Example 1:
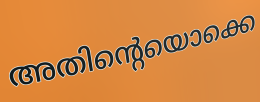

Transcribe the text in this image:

അതിന്റെയൊക്കെ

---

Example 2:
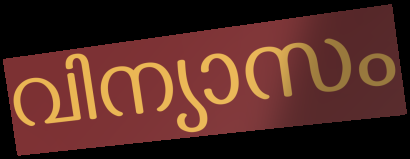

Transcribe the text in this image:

വിന്യാസം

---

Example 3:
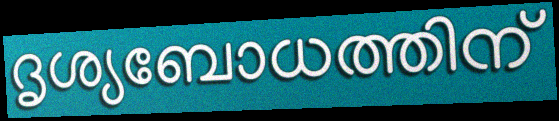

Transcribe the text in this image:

ദൃശ്യബോധത്തിന്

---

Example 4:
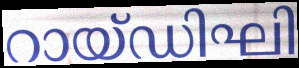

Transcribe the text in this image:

റായ്ഡിഘി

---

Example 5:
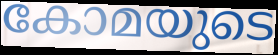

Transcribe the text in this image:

കോമയുടെ